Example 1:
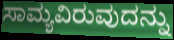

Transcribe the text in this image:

ಸಾಮ್ಯವಿರುವುದನ್ನು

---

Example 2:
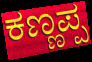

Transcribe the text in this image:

ಕಣ್ಣಪ್ಪ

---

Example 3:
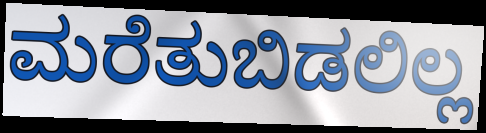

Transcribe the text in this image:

ಮರೆತುಬಿಡಲಿಲ್ಲ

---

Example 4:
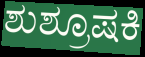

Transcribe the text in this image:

ಶುಶ್ರೂಷಕಿ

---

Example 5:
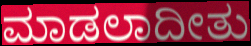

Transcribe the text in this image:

ಮಾಡಲಾದೀತು